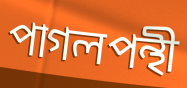
পাগলপন্থী